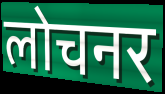
लोचनर